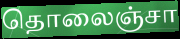
தொலைஞ்சா